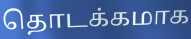
தொடக்கமாக